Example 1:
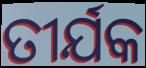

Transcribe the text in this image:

ତୀର୍ଯକ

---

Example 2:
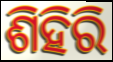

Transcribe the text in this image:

ଶିହିରି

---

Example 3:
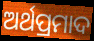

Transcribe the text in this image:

ଅର୍ଥପ୍ରମାଦ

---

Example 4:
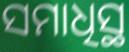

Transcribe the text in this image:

ସମାଧିସ୍ଥ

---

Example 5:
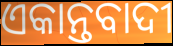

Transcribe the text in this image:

ଏକାନ୍ତବାଦୀ